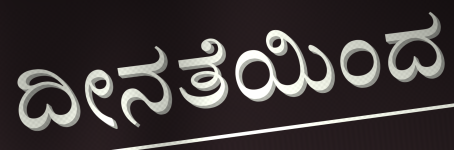
ದೀನತೆಯಿಂದ